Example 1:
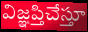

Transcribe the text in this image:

విజ్ఞప్తిచేస్తూ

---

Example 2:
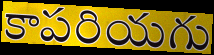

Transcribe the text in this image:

కాపరియగు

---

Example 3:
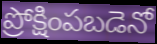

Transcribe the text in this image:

ప్రోక్షింపబడెనో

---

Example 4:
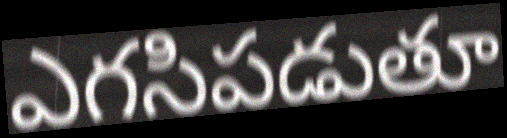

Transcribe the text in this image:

ఎగసిపడుతూ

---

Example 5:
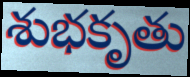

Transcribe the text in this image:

శుభకృతు